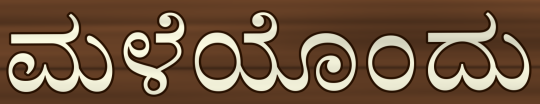
ಮಳೆಯೊಂದು